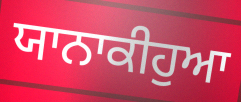
ਯਾਨਾਕੀਹੁਆ